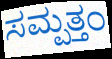
ಸಮ್ಪತ್ತಂ